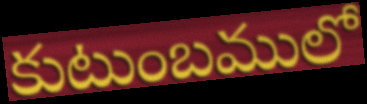
కుటుంబములో